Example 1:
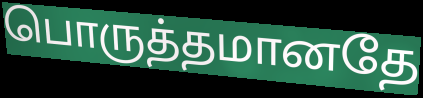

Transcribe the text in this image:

பொருத்தமானதே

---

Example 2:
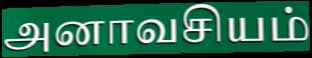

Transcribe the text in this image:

அனாவசியம்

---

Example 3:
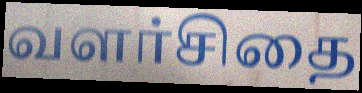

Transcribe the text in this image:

வளர்சிதை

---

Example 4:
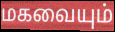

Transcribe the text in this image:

மகவையும்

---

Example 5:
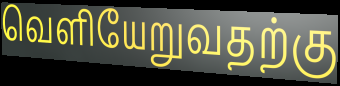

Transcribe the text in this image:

வெளியேறுவதற்கு